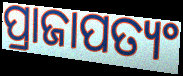
ପ୍ରାଜାପତ୍ୟଂ